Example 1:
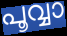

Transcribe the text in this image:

പൂവ്വാ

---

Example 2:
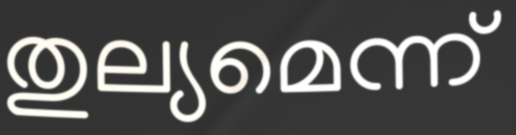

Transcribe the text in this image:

തുല്യമെന്ന്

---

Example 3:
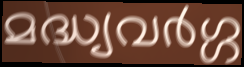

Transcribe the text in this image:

മദ്ധ്യവർഗ്ഗ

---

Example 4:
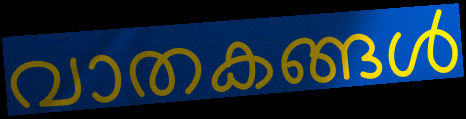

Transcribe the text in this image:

വാതകങ്ങൾ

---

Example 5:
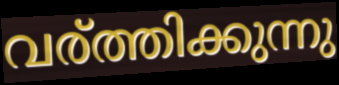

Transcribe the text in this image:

വര്ത്തിക്കുന്നു